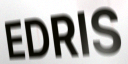
EDRIS